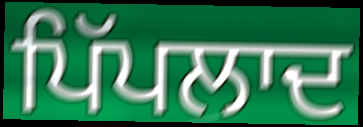
ਪਿੱਪਲਾਦ